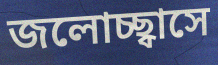
জলোচ্ছ্বাসে